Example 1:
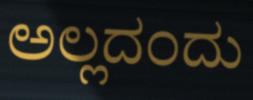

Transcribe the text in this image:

ಅಲ್ಲದಂದು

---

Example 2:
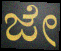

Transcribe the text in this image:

ಜೇ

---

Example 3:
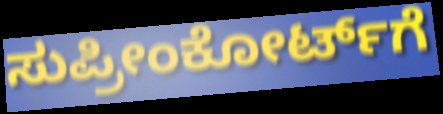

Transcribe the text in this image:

ಸುಪ್ರೀಂಕೋರ್ಟ್‌ಗೆ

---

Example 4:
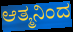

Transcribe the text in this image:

ಆತ್ಮನಿಂದ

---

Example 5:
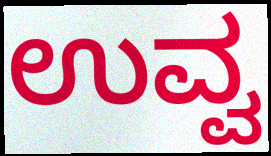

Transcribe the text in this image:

ಉವ್ವ